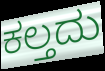
ಕಲ್ತದು